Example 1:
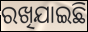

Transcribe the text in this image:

ରଖିଯାଇଛି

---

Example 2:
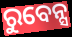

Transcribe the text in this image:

ରୁବେନ୍ସ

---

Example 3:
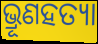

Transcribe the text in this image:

ଭ୍ରୂଣହତ୍ୟା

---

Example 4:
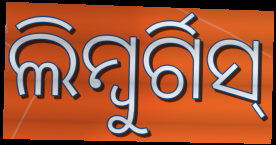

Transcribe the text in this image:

ଲିମ୍ବୁର୍ଗିସ୍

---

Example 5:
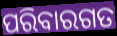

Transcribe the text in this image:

ପରିବାରଗତ